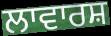
ਲਾਵਾਰਸ਼